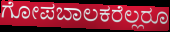
ಗೋಪಬಾಲಕರೆಲ್ಲರೂ